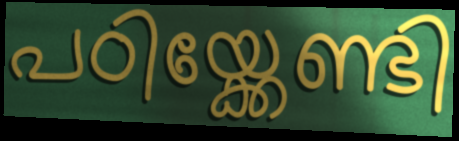
പഠിയ്ക്കേണ്ടി